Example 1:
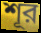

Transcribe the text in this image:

শূর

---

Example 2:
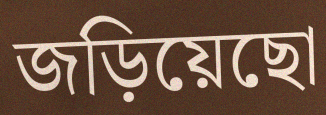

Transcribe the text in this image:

জড়িয়েছো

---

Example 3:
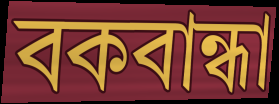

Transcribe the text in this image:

বকবান্ধা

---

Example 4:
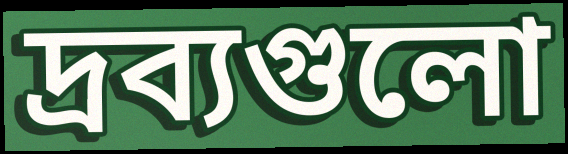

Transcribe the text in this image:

দ্রব্যগুলো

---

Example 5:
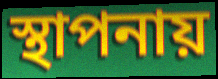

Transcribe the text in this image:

স্থাপনায়